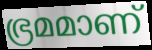
ഭ്രമമാണ്